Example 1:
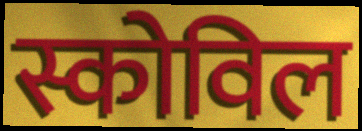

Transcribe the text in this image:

स्कोविल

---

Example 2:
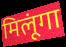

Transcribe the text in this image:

मिलूंगा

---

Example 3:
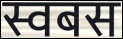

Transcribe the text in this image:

स्वबस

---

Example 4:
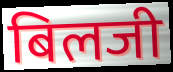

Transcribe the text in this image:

बिलजी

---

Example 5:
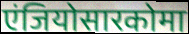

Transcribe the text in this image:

एंजियोसारकोमा